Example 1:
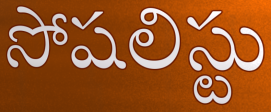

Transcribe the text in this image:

సోషలిస్టు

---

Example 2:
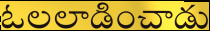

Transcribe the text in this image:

ఓలలాడించాడు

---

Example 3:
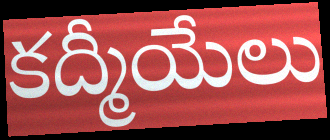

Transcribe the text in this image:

కద్మీయేలు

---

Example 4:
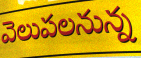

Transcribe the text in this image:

వెలుపలనున్న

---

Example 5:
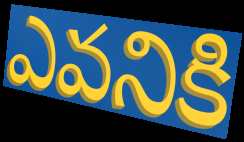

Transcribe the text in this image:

ఎవనికి